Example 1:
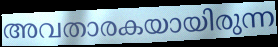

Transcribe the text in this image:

അവതാരകയായിരുന്ന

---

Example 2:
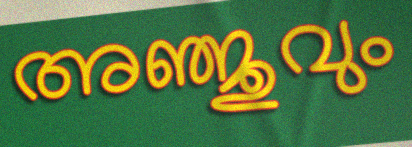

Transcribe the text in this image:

അഞ്ജുവും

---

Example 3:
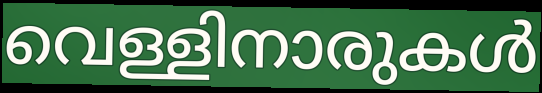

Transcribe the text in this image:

വെള്ളിനാരുകൾ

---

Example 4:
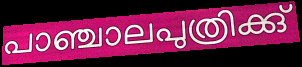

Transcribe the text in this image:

പാഞ്ചാലപുത്രിക്കു്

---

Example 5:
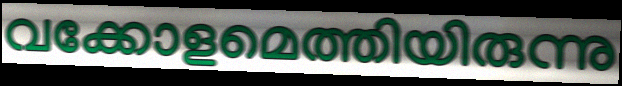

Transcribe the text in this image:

വക്കോളമെത്തിയിരുന്നു